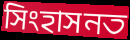
সিংহাসনত